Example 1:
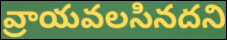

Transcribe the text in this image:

వ్రాయవలసినదని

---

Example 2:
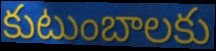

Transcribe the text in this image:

కుటుంబాలకు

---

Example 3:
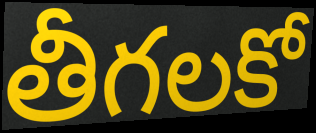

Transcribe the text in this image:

తీగలకో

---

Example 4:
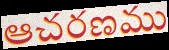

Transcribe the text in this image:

ఆచరణము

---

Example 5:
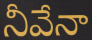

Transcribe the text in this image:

నీవేనా